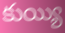
కుయ్యి